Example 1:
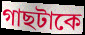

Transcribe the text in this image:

গাছটাকে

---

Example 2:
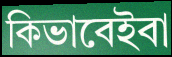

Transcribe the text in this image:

কিভাবেইবা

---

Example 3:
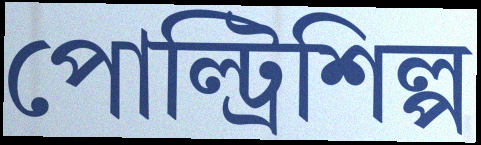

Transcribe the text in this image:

পোল্ট্রিশিল্প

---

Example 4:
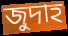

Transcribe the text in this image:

জুদাহ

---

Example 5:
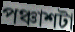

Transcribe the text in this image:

পঞ্চাশটা